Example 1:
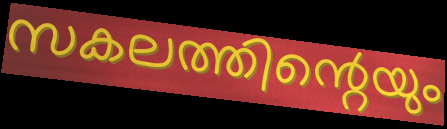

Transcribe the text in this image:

സകലത്തിന്റെയും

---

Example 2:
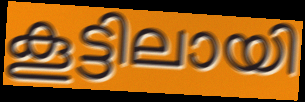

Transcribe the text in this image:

കൂട്ടിലായി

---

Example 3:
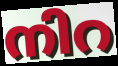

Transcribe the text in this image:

നിറ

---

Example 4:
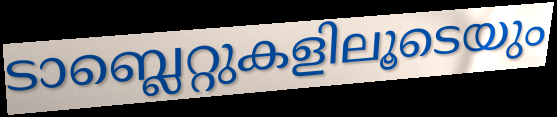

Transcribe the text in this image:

ടാബ്ലെറ്റുകളിലൂടെയും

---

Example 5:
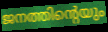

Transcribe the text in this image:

ജനത്തിന്റെയും